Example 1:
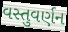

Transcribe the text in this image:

વસ્તુવર્ણન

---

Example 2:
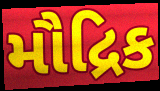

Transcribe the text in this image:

મૌદ્રિક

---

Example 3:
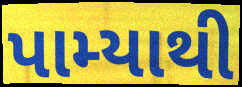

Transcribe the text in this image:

પામ્યાથી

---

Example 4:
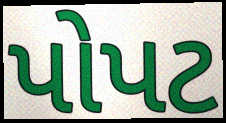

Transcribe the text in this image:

પોપટ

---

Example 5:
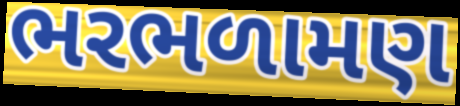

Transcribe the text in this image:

ભરભળામણ